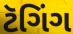
ટૅગિંગ